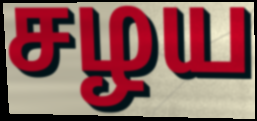
சழய